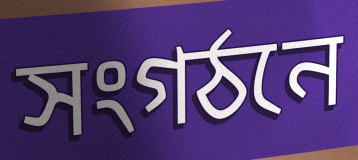
সংগঠনে